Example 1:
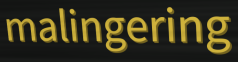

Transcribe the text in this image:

malingering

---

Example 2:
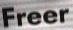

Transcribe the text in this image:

Freer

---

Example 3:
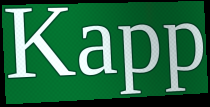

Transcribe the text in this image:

Kapp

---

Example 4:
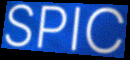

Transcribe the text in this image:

SPIC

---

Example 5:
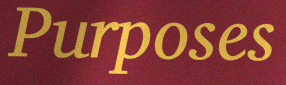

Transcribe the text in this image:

Purposes